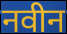
नवीन